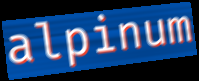
alpinum